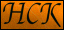
HCK